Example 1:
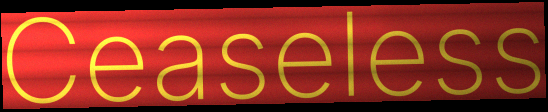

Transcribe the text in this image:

Ceaseless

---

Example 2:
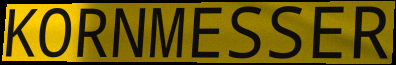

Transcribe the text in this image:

KORNMESSER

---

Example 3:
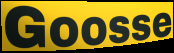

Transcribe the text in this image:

Goosse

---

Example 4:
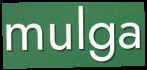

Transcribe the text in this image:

mulga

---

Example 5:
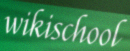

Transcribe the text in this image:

wikischool